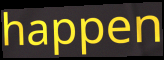
happen